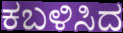
ಕಬಳಿಸಿದ